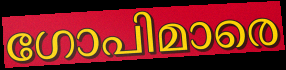
ഗോപിമാരെ